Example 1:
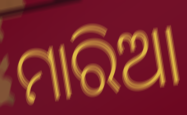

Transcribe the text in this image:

ମାରିଆ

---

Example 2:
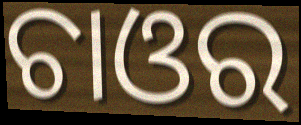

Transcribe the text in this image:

ଚାଓର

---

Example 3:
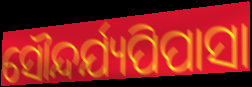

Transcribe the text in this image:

ସୌନ୍ଦର୍ଯ୍ୟପିପାସା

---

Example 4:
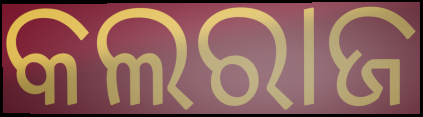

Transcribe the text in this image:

କଲରାଜ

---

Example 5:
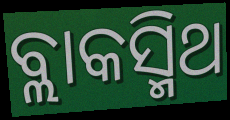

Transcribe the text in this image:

ବ୍ଲାକସ୍ମିଥ